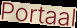
Portaal